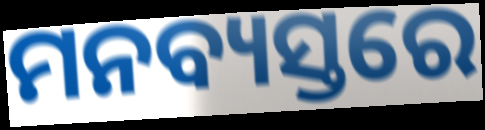
ମନବ୍ୟସ୍ତରେ